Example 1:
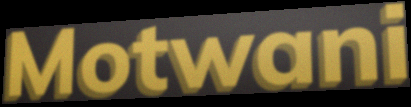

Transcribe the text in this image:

Motwani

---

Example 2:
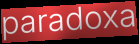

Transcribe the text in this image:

paradoxa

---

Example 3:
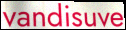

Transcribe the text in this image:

vandisuve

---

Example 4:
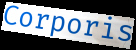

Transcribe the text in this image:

Corporis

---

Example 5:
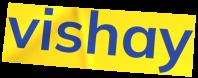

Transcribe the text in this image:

vishay